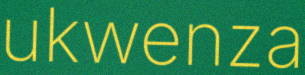
ukwenza